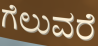
ಗೆಲುವರೆ